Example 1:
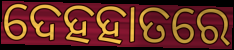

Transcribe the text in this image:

ଦେହହାତରେ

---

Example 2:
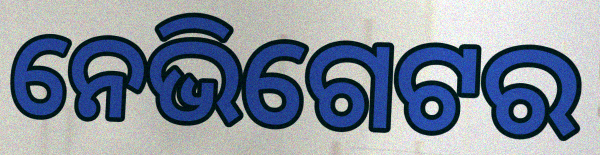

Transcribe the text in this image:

ନେଭିଗେଟର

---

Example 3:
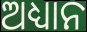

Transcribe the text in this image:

ଅଧ୍ୟାନ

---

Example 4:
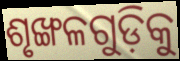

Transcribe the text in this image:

ଶୃଙ୍ଖଳଗୁଡ଼ିକୁ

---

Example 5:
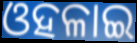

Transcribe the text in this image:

ଓହଳାଇ